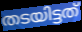
തടയിട്ടത്